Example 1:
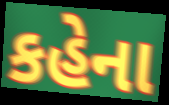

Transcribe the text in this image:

કહેના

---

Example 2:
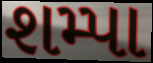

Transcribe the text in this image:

શમ્પા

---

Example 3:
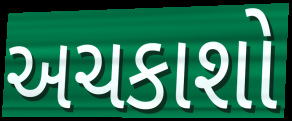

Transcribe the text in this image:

અચકાશો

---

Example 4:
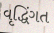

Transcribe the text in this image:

વૃદ્ધિંગત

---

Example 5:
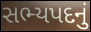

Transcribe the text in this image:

સભ્યપદનું